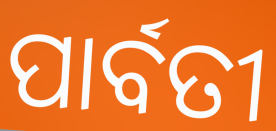
ପାର୍ବତୀ